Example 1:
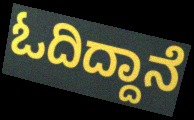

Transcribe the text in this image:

ಓದಿದ್ದಾನೆ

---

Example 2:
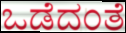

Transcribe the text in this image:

ಒಡೆದಂತೆ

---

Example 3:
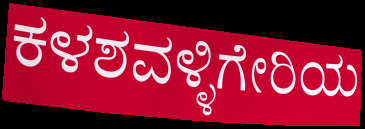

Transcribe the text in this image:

ಕಳಶವಳ್ಳಿಗೇರಿಯ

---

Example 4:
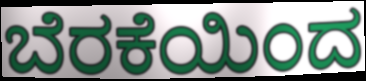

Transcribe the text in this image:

ಬೆರಕೆಯಿಂದ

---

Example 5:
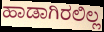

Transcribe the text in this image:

ಹಾಡಾಗಿರಲಿಲ್ಲ